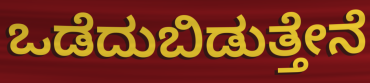
ಒಡೆದುಬಿಡುತ್ತೇನೆ